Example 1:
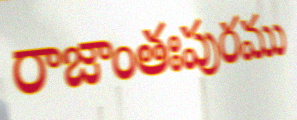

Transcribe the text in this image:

రాజాంతఃపురము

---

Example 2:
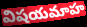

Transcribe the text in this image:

విషయమాహ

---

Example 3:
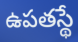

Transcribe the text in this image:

ఉపతస్థే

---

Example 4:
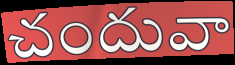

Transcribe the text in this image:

చందువా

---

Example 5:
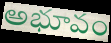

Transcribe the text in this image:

అభూవం